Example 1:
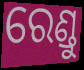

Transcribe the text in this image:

ରେଣ୍ଡୁ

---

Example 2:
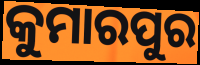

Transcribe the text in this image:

କୁମାରପୁର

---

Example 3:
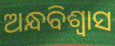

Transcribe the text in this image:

ଅନ୍ଧବିଶ୍ଵାସ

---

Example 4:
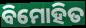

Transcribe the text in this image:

ବିମୋହିତ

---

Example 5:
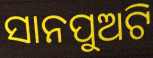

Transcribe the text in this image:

ସାନପୁଅଟି